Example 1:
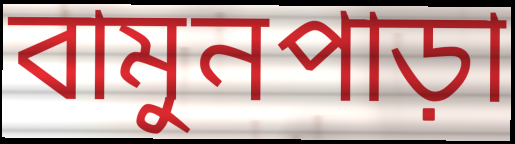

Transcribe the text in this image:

বামুনপাড়া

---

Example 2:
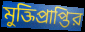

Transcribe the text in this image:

মুক্তিপ্রাপ্তির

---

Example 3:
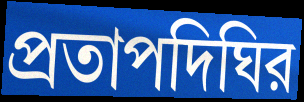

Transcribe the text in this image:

প্রতাপদিঘির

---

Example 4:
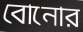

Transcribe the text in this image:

বোনোর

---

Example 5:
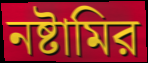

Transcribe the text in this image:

নষ্টামির